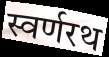
स्वर्णरथ